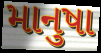
માનુષા